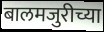
बालमजुरीच्या